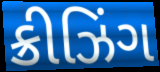
ક્રીઝિંગ